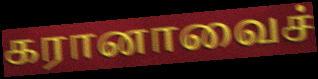
கரானாவைச்